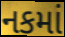
નકમાં